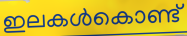
ഇലകൾകൊണ്ട്